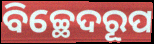
ବିଚ୍ଛେଦରୂପ